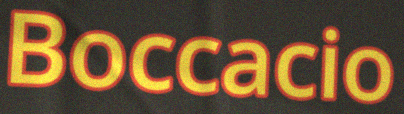
Boccacio